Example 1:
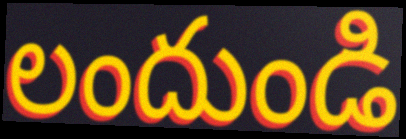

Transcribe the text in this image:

లందుండి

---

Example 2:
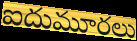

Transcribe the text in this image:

ఐదుమూరలు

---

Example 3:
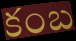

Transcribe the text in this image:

కంబ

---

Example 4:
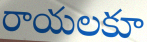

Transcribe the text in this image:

రాయలకూ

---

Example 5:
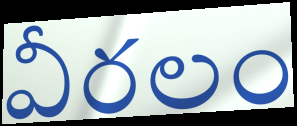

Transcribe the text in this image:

వీరలం